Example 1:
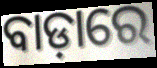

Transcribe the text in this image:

ବାଡ଼ାରେ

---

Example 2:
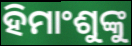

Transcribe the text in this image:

ହିମାଂଶୁଙ୍କୁ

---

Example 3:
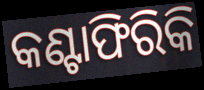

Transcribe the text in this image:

କଣ୍ଟାଫିରିକି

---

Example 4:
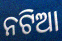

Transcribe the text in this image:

ନଟିଆ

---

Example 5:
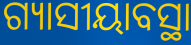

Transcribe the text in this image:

ଗ୍ୟାସୀୟାବସ୍ଥା